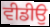
ਵੀਡੀਉ